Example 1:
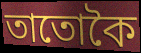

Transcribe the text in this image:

তাতোকৈ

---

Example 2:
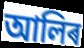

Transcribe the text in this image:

আলিৰ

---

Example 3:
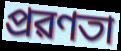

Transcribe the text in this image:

প্ৰৱণতা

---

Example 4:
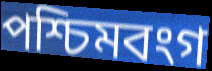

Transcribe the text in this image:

পশ্চিমবংগ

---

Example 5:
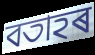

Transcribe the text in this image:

বতাহৰ